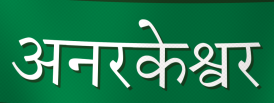
अनरकेश्वर